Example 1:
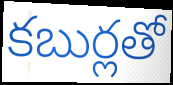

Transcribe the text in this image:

కబుర్లతో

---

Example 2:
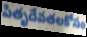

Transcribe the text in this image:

పితృదేవతలకోసం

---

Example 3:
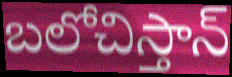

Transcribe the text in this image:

బలోచిస్తాన్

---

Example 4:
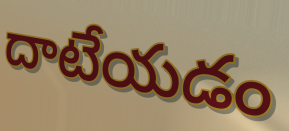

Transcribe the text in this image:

దాటేయడం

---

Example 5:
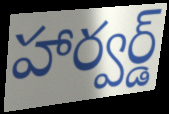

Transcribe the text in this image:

హార్వర్డ్